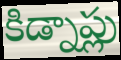
కిడ్నాప్లు